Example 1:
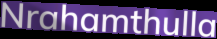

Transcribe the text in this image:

Nrahamthulla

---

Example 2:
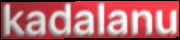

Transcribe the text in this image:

kadalanu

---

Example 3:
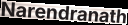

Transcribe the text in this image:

Narendranath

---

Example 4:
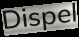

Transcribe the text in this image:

Dispel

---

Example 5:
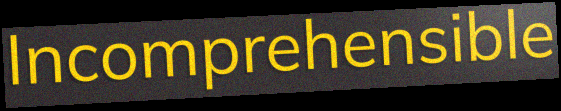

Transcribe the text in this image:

Incomprehensible